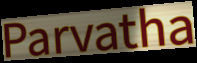
Parvatha